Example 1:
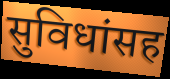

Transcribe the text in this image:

सुविधांसह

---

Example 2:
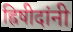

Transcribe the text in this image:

ह्रिषीदांनी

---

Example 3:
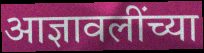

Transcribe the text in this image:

आज्ञावलींच्या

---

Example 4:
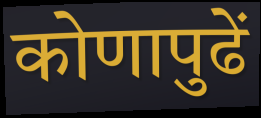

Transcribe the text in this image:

कोणापुढें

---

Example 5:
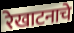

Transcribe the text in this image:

रेखाटनाचे